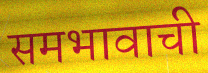
समभावाची